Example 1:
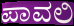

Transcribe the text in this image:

ಪಾವಲಿ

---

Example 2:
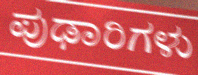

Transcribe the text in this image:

ಪುಢಾರಿಗಳು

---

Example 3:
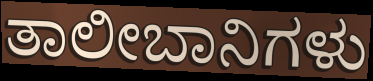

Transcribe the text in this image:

ತಾಲೀಬಾನಿಗಳು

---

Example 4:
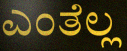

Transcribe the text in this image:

ಎಂತೆಲ್ಲ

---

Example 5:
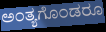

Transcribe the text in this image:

ಅಂತ್ಯಗೊಂಡರೂ